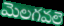
మెలగవలె